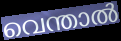
വെന്താൽ